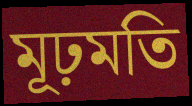
মূঢ়মতি